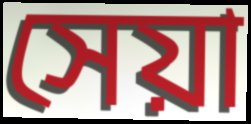
সেয়া